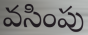
వసింపు